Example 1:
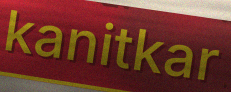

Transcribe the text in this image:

kanitkar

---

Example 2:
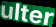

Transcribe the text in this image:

ulter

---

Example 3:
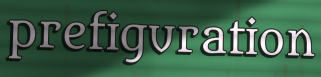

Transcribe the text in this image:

prefiguration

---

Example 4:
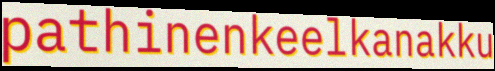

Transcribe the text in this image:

pathinenkeelkanakku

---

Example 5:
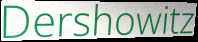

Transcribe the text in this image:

Dershowitz